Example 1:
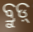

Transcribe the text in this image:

ବ୍ରୁଡ଼୍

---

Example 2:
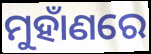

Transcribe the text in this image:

ମୁହାଁଣରେ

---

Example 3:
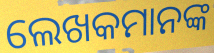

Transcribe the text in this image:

ଲେଖକମାନଙ୍କ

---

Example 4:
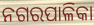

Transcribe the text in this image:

ନଗରପାଳିକା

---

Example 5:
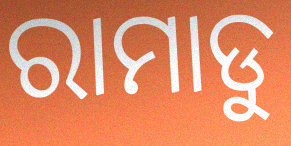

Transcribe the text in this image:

ରାମାଡୁ